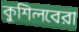
কুশিলবেরা